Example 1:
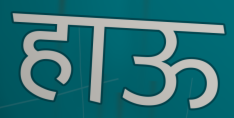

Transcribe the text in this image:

हाऊ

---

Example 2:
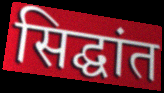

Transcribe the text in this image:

सिद्घांत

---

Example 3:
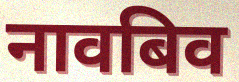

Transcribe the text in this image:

नावबिव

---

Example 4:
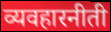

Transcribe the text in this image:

व्यवहारनीती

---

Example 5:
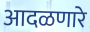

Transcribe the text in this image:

आदळणारे